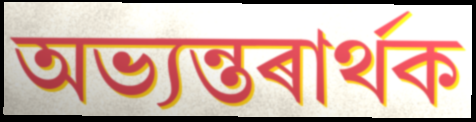
অভ্যন্তৰাৰ্থক